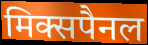
मिक्सपैनल